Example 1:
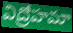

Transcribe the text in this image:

విద్రోహమా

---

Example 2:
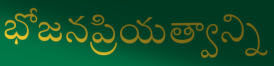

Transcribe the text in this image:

భోజనప్రియత్వాన్ని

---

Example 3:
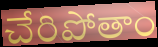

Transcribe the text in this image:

చేరిపోతాం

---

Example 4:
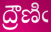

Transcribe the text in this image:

ద్రౌణిఁ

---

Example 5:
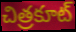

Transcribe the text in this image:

చిత్రకూట్